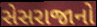
સેસરાજાનો